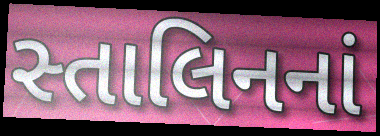
સ્તાલિનનાં